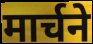
मार्चने